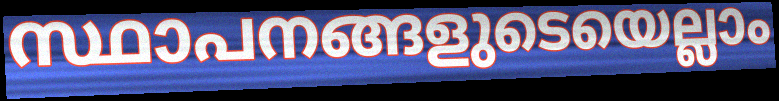
സ്ഥാപനങ്ങളുടെയെല്ലാം